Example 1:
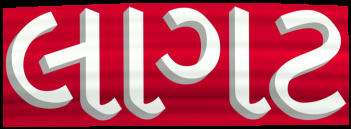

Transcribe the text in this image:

લાગટ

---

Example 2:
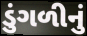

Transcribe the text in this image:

ડુંગળીનું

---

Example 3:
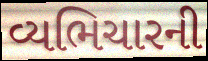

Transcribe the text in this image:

વ્યભિચારની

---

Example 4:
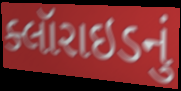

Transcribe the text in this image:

ક્લૉરાઇડનું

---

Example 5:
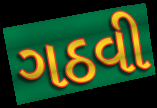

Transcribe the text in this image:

ગઠવી